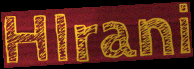
HIrani